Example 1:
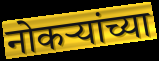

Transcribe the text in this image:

नोकर्‍यांच्या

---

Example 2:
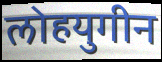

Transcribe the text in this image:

लोहयुगीन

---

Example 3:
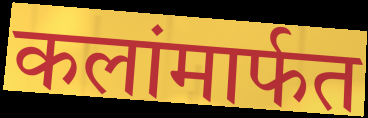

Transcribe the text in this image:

कलांमार्फत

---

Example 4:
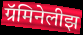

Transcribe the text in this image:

ग्रॅमिनेलीझ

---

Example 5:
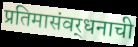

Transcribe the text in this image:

प्रतिमासंवर्धनाची